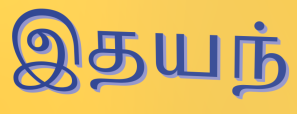
இதயந்